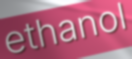
ethanol